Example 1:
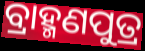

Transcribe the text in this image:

ବ୍ରାହ୍ମଣପୁତ୍ର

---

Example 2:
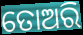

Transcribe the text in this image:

ତୋଅରି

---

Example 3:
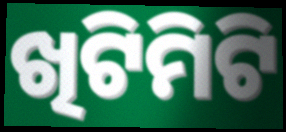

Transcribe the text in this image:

ଖିଟିମିଟି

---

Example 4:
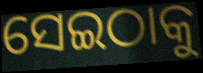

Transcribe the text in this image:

ସେଇଠାକୁ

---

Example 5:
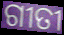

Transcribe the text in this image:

ଗୀତୀ